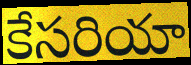
కేసరియా